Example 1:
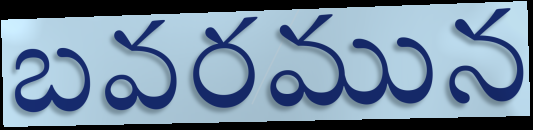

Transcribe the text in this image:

బవరమున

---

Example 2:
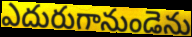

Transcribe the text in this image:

ఎదురుగానుండెను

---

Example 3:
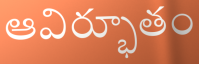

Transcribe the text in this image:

ఆవిర్భూతం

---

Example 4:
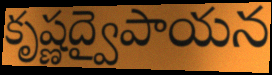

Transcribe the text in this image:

కృష్ణద్వైపాయన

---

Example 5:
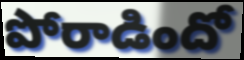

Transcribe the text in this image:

పోరాడిందో